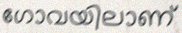
ഗോവയിലാണ്